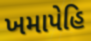
ખમાપેહિ